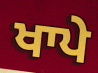
ਖਾਪੇ